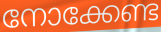
നോക്കേണ്ട